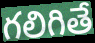
గలిగితే